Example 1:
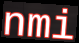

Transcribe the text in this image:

nmi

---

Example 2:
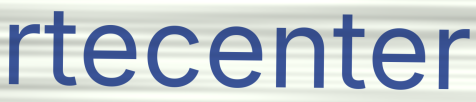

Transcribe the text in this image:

rtecenter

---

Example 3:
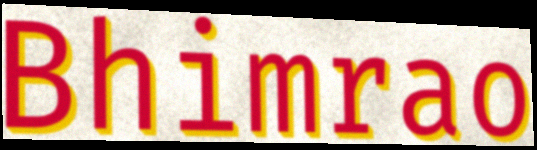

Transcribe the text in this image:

Bhimrao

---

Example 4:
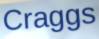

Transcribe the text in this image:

Craggs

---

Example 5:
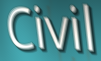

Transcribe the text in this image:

Civil